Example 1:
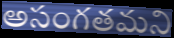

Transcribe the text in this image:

అసంగతమని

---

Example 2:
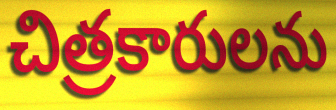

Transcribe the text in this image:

చిత్రకారులను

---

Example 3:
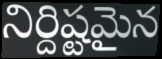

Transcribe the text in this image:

నిర్దిష్టమైన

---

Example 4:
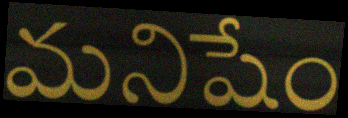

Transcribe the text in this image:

మనిషేం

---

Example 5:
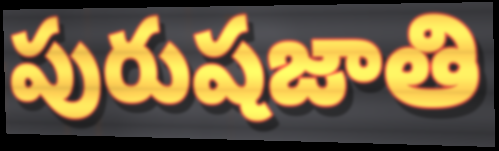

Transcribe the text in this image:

పురుషజాతి